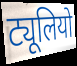
ट्यूलियो